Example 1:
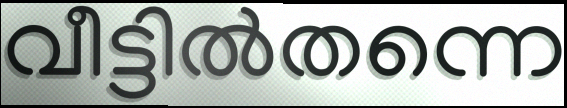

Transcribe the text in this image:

വീട്ടിൽതന്നെ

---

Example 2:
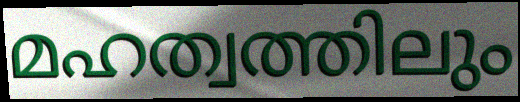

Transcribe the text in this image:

മഹത്വത്തിലും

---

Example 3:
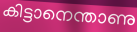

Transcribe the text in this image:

കിട്ടാനെന്താണു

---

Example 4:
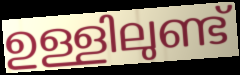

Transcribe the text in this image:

ഉള്ളിലുണ്ട്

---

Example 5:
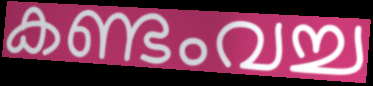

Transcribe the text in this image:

കണ്ടംവച്ച